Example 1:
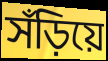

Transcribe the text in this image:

সঁড়িয়ে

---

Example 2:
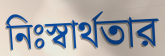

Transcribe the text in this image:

নিঃস্বার্থতার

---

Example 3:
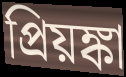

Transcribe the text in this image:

প্রিয়ঙ্কা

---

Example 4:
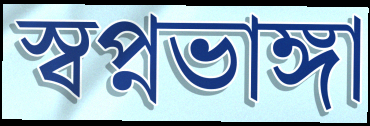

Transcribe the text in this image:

স্বপ্নভাঙ্গা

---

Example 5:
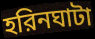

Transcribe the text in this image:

হরিনঘাটা